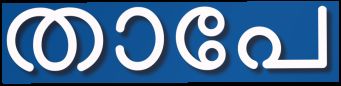
താപേ